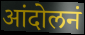
आंदोलनं